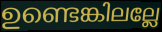
ഉണ്ടെങ്കിലല്ലേ